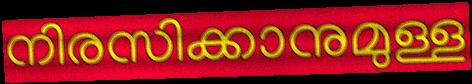
നിരസിക്കാനുമുള്ള